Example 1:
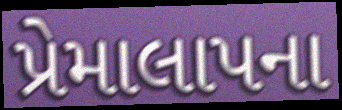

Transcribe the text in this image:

પ્રેમાલાપના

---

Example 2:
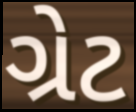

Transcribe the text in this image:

ગ્રેટ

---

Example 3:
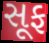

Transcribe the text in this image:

સૂફ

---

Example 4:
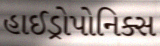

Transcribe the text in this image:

હાઈડ્રોપોનિક્સ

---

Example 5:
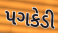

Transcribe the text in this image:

પગકેડી